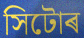
সিটোৰ